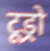
टूड्रो